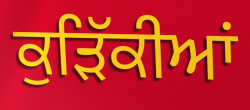
ਕੁੜਿੱਕੀਆਂ